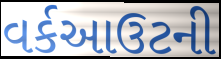
વર્કઆઉટની